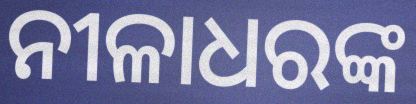
ନୀଳାଧରଙ୍କ